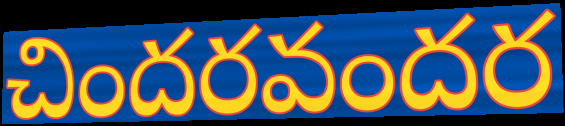
చిందరవందర